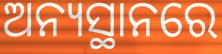
ଅନ୍ୟସ୍ଥାନରେ